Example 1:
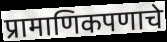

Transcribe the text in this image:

प्रामाणिकपणाचे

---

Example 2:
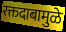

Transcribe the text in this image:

रक्तदाबामुळे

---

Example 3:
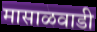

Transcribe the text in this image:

मासाळवाडी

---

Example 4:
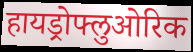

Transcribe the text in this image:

हायड्रोफ्लुओरिक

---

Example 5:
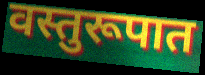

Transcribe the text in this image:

वस्तुरूपात